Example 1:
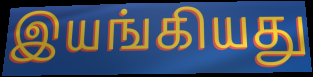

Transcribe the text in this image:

இயங்கியது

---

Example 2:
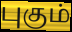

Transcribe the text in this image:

புகும்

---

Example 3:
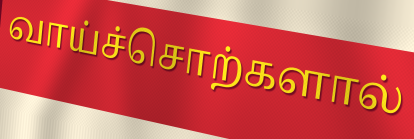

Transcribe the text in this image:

வாய்ச்சொற்களால்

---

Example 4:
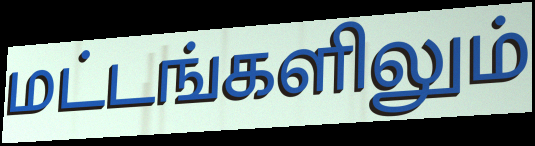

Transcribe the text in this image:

மட்டங்களிலும்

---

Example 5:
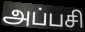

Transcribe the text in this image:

அப்பசி